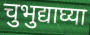
चुभुद्याघ्या